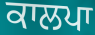
ਕਾਲਪਾ